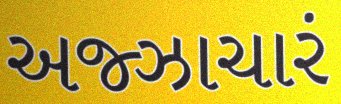
અજ્ઝાચારં